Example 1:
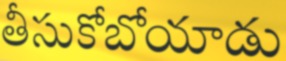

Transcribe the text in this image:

తీసుకోబోయాడు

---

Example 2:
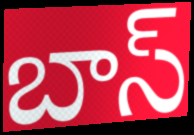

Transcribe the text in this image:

బాస్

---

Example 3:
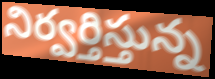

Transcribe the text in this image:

నిర్వర్తిస్తున్న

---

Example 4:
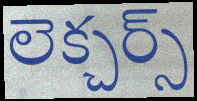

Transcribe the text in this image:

లెక్చర్స్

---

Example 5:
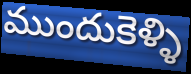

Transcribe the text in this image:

ముందుకెళ్ళి